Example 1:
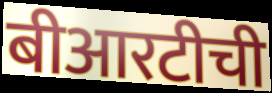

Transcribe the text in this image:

बीआरटीची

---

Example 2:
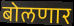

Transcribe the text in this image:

बोलणार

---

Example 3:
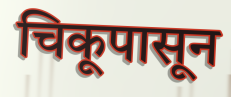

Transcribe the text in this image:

चिकूपासून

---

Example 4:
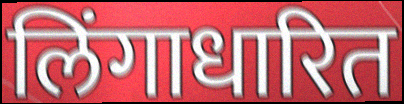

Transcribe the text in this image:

लिंगाधारित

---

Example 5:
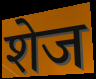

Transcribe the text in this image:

शेज